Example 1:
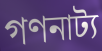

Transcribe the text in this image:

গণনাট্য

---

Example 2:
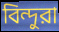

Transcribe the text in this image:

বিন্দুরা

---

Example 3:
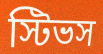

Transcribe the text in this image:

স্টিভস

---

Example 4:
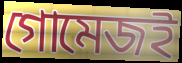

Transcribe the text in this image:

গোমেজই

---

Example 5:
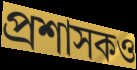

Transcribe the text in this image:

প্রশাসকও